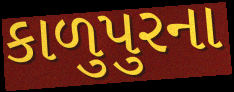
કાળુપુરના